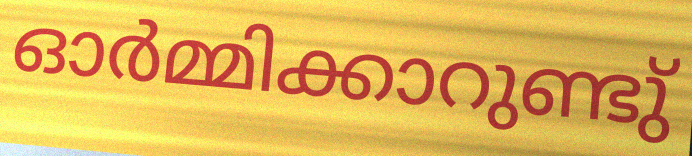
ഓർമ്മിക്കാറുണ്ടു്